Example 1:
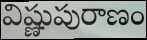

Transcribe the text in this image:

విష్ణుపురాణం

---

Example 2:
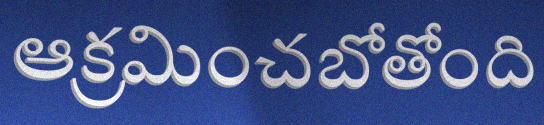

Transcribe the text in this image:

ఆక్రమించబోతోంది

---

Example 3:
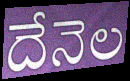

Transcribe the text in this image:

దేనెల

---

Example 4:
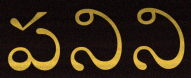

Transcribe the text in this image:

పనిని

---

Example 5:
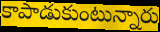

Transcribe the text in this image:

కాపాడుకుంటున్నారు